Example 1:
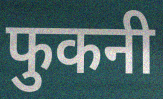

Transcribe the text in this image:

फुकनी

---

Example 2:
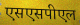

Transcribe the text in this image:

एसएसपीएल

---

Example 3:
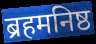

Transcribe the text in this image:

ब्रहमनिष्ठ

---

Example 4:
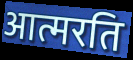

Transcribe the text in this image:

आत्मरति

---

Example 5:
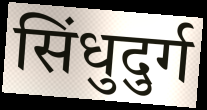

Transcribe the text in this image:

सिंधुदुर्ग